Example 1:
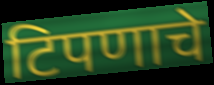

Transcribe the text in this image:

टिपणाचे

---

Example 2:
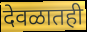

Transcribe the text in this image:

देवळातही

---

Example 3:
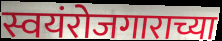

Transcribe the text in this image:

स्वयंरोजगाराच्या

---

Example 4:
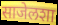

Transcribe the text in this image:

साजेलशा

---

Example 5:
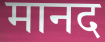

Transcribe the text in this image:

मानद